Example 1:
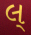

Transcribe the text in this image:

લ્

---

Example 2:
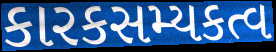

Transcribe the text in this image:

કારકસમ્યકત્વ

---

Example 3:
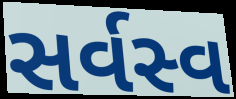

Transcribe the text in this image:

સર્વસ્વ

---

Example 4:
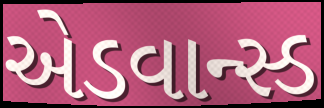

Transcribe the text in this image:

એડવાન્સ્ડ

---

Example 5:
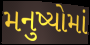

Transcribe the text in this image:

મનુષ્યોમાં